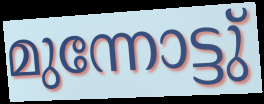
മുന്നോട്ടു്